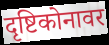
दृष्टिकोनावर